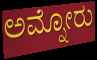
ಅಮ್ನೋರು